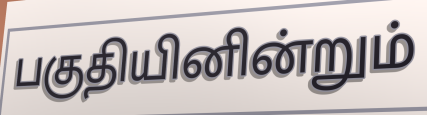
பகுதியினின்றும்